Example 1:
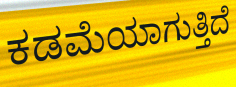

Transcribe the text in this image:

ಕಡಮೆಯಾಗುತ್ತಿದೆ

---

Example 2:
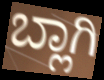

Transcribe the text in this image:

ಬ್ಲಾಗಿ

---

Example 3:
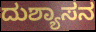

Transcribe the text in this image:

ದುಶ್ಯಾಸನ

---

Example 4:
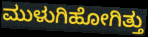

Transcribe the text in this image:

ಮುಳುಗಿಹೋಗಿತ್ತು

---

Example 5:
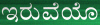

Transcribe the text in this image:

ಇರುವೆಯೊ